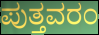
ಪುತ್ತವರಂ